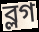
ব্লগ